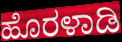
ಹೊರಳಾಡಿ